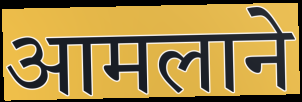
आमलाने